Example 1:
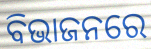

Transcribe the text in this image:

ବିଭାଜନରେ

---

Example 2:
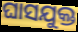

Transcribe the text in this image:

ଘାସଯୁକ୍ତ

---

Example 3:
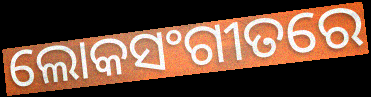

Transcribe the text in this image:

ଲୋକସଂଗୀତରେ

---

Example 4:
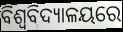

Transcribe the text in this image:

ବିଶ୍ୱବିଦ୍ୟାଳୟରେ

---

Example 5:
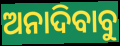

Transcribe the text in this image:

ଅନାଦିବାବୁ